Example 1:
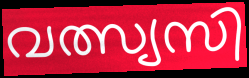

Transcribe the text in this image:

വത്സ്യസി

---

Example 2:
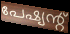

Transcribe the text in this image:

പേഷ്യന്റ്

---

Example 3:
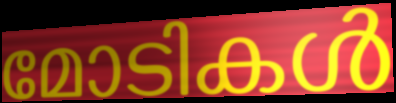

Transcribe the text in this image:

മോടികൾ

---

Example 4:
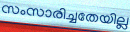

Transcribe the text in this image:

സംസാരിച്ചതേയില്ല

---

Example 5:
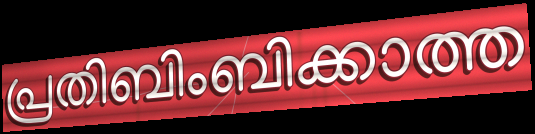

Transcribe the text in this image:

പ്രതിബിംബിക്കാത്ത